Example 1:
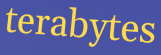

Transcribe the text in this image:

terabytes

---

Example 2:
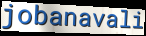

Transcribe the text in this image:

jobanavali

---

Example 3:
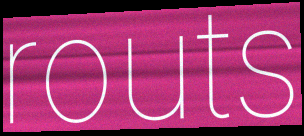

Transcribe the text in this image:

routs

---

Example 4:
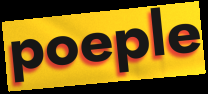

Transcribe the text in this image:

poeple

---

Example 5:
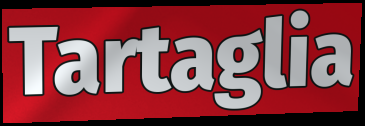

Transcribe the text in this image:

Tartaglia